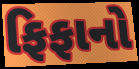
ફિફાનો